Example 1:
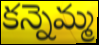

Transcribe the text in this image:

కన్నెమ్మ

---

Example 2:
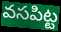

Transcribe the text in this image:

వసపిట్ట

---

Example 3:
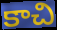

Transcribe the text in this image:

కాచి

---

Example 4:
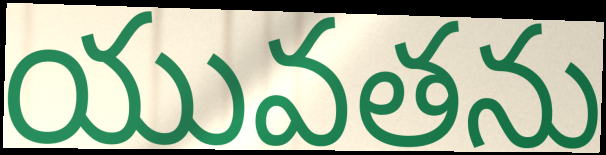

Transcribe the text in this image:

యువతను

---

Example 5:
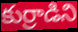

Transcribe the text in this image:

కుర్రాడిని